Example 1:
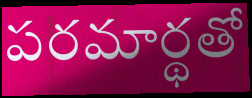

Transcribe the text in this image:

పరమార్థతో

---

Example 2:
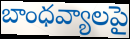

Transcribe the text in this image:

బాంధవ్యాలపై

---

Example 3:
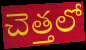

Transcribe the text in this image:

చెత్తలో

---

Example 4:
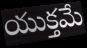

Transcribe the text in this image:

యుక్తమే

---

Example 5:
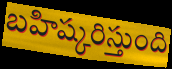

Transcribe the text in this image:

బహిష్కరిస్తుంది